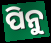
ପିନୁ